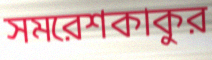
সমরেশকাকুর